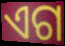
ଏଗ